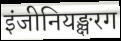
इंजीनियङ्क्षरग